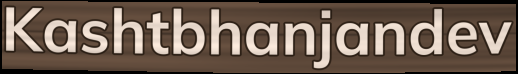
Kashtbhanjandev